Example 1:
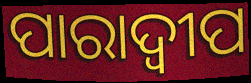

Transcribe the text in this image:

ପାରାଦ୍ୱୀପ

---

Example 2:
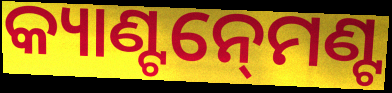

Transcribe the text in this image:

କ୍ୟାଣ୍ଟନ୍‍ମେଣ୍ଟ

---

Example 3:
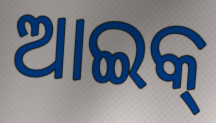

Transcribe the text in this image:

ଆଇକ୍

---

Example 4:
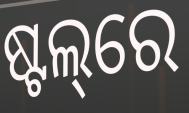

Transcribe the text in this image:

ଷ୍ଟଲ୍‌ରେ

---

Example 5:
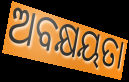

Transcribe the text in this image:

ଅବକ୍ଷୟତା